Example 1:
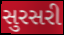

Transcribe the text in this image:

સુરસરી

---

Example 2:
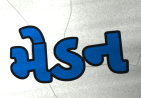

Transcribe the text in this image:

મેડન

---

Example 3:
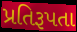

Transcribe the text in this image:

પ્રતિરૂપતા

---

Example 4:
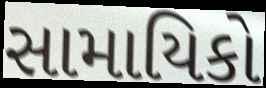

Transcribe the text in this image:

સામાયિકો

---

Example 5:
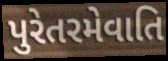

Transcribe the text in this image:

પુરેતરમેવાતિ